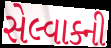
સેલ્વાક્ની